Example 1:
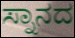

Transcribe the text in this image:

ಸ್ನಾನದ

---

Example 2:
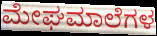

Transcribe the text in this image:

ಮೇಘಮಾಲೆಗಳ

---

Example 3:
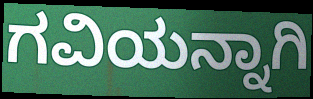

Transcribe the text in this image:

ಗವಿಯನ್ನಾಗಿ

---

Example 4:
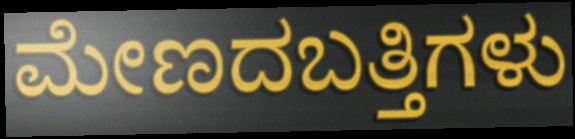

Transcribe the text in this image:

ಮೇಣದಬತ್ತಿಗಳು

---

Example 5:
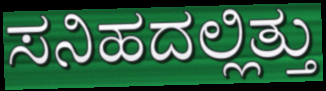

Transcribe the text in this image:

ಸನಿಹದಲ್ಲಿತ್ತು